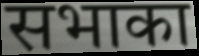
सभाका